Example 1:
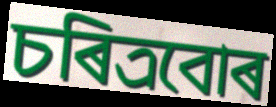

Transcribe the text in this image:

চৰিত্ৰবোৰ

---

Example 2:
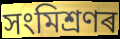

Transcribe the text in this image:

সংমিশ্ৰণৰ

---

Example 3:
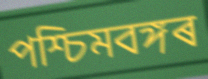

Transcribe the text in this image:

পশ্চিমবঙ্গৰ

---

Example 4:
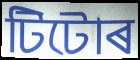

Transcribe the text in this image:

টিটোৰ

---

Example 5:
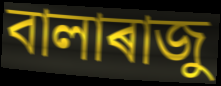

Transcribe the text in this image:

বালাৰাজু